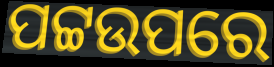
ପଟ୍ଟଉପରେ